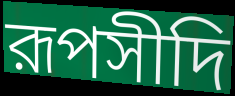
রূপসীদি